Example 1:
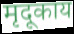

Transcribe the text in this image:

मृदूकाय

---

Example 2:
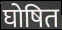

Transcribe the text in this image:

घोषित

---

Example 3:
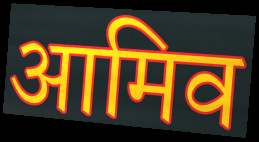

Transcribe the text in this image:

आमिव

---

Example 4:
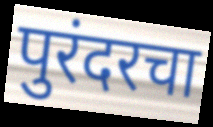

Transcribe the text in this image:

पुरंदरचा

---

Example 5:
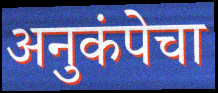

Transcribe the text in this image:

अनुकंपेचा